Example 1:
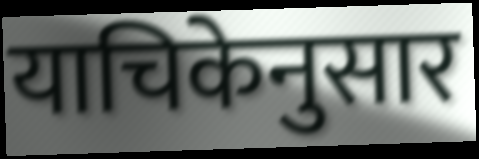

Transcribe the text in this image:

याचिकेनुसार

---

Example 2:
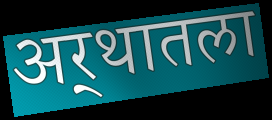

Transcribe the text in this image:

अर्थातला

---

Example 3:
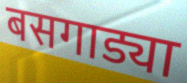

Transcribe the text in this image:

बसगाड्या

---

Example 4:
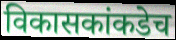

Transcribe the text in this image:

विकासकांकडेच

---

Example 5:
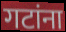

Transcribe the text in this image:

गटांना